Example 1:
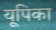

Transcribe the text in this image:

यूपिका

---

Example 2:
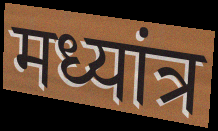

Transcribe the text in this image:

मध्यांत्र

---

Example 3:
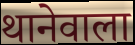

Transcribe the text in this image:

थानेवाला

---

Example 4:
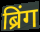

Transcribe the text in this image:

ब्रिंग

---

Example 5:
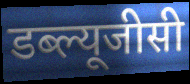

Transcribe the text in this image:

डब्ल्यूजीसी